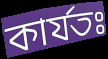
কাৰ্যতঃ